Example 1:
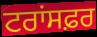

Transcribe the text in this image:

ਟਰਾਂਸਫ਼ਰ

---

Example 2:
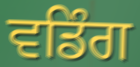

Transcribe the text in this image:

ਵਡਿੰਗ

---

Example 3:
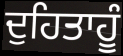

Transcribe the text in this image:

ਦੁਹਿਤਾਹੂੰ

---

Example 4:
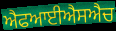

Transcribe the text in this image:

ਐਫਆਈਐਸਐਚ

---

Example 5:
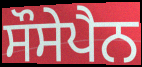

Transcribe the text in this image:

ਸੌਸੇਪੈਨ